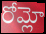
రోమ్లో